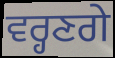
ਵਰ੍ਹਣਗੇ